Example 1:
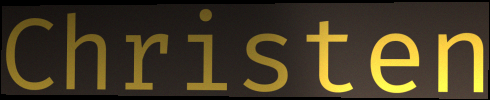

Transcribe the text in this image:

Christen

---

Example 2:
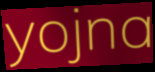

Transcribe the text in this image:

yojna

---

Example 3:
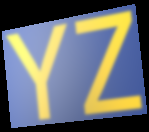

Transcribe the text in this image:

YZ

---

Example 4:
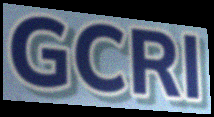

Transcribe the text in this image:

GCRI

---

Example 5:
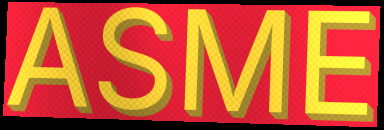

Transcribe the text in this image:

ASME